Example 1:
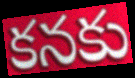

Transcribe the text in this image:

కనకు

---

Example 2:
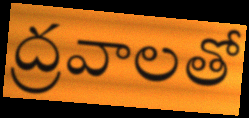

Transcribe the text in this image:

ద్రవాలతో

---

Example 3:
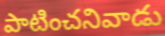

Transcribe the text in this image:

పాటించనివాడు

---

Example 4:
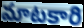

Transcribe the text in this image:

మాటకారి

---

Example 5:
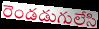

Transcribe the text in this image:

రెండడుగులేసి